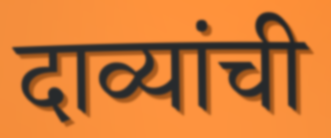
दाव्यांची